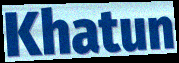
Khatun